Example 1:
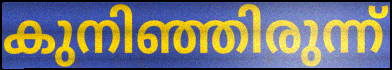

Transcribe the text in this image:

കുനിഞ്ഞിരുന്ന്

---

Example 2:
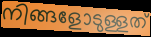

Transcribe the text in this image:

നിങ്ങളോടുള്ളത്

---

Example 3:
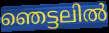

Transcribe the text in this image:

ഞെട്ടലിൽ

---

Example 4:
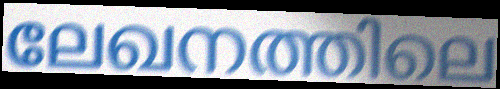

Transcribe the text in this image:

ലേഖനത്തിലെ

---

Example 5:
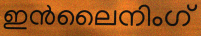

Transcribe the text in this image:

ഇൻലൈനിംഗ്